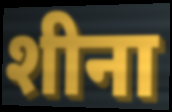
शीना